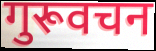
गुरूवचन